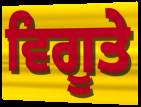
ਵਿਗੂਤੇ